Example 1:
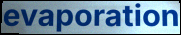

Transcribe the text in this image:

evaporation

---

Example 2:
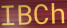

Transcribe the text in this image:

IBCh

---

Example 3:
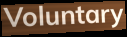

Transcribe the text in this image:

Voluntary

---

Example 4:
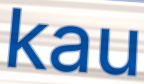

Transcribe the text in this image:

kau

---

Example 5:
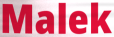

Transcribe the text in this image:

Malek